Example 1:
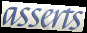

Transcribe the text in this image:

asserts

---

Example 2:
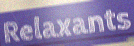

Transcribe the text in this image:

Relaxants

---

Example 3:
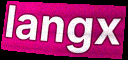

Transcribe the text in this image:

langx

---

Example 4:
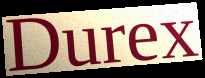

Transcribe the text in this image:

Durex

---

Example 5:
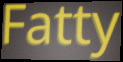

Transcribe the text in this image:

Fatty